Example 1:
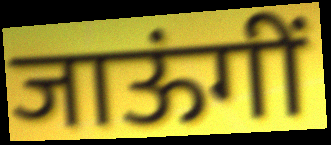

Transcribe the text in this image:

जाऊंगीं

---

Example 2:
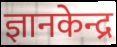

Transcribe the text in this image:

ज्ञानकेन्द्र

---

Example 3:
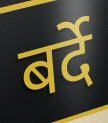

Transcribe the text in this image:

बर्दे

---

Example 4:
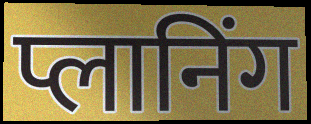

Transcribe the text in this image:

प्लानिंग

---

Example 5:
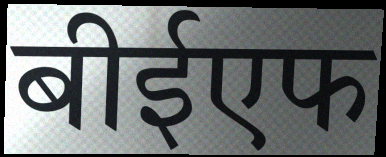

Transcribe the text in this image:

बीईएफ